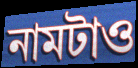
নামটাও